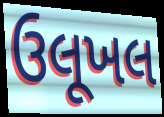
ઉલૂખલ